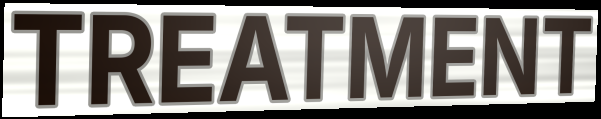
TREATMENT